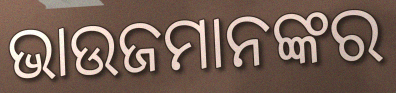
ଭାଉଜମାନଙ୍କର